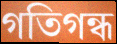
গতিগন্ধ